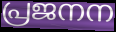
പ്രജനന